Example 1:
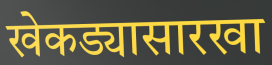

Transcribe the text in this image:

खेकड्यासारखा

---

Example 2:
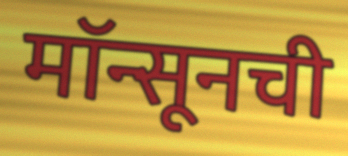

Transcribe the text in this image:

मॉन्सूनची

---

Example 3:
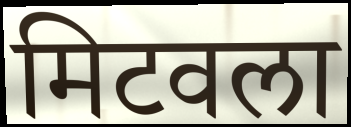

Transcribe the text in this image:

मिटवला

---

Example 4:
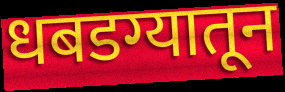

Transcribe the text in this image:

धबडग्यातून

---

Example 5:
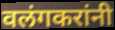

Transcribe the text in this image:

वलंगकरांनी